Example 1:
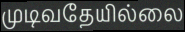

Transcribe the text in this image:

முடிவதேயில்லை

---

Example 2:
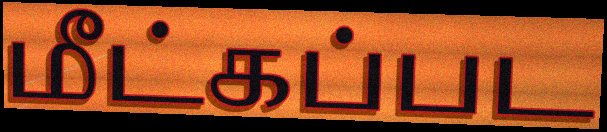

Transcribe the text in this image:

மீட்கப்பட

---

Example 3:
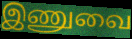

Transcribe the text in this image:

இணுவை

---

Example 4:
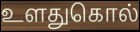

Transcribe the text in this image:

உளதுகொல்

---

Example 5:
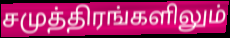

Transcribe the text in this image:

சமுத்திரங்களிலும்